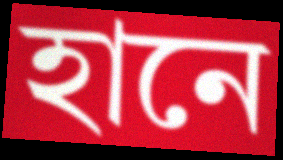
হানে